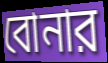
বোনার